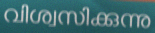
വിശ്വസിക്കുന്നു